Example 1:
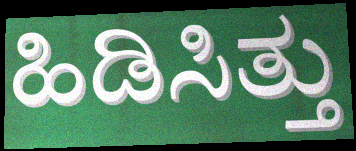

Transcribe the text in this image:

ಹಿಡಿಸಿತ್ತು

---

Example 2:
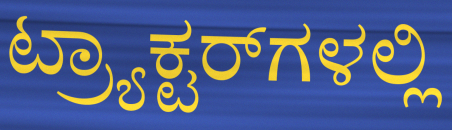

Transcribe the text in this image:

ಟ್ರ್ಯಾಕ್ಟರ್‌ಗಳಲ್ಲಿ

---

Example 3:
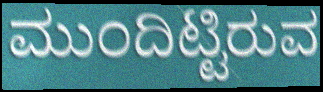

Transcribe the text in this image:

ಮುಂದಿಟ್ಟಿರುವ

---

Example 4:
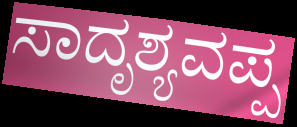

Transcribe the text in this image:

ಸಾದೃಶ್ಯವಪ್ಪ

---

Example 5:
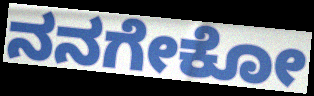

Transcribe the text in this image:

ನನಗೇಕೋ